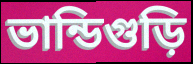
ভান্ডিগুড়ি